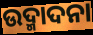
ଉଦ୍ମାଦନା